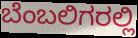
ಬೆಂಬಲಿಗರಲ್ಲಿ